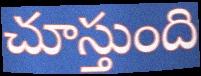
చూస్తుంది